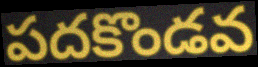
పదకొండవ